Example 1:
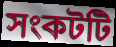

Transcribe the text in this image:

সংকটটি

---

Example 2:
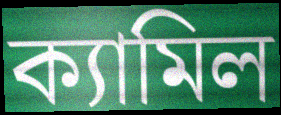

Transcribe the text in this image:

ক্যামিল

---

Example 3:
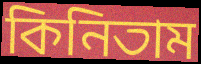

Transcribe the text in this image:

কিনিতাম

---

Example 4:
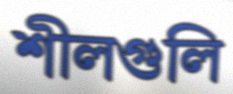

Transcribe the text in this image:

শীলগুলি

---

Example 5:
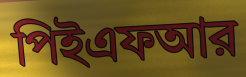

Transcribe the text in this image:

পিইএফআর